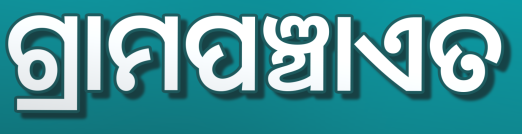
ଗ୍ରାମପଞ୍ଚାଏତ